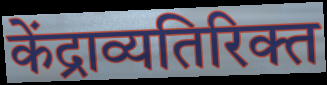
केंद्राव्यतिरिक्त